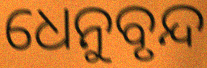
ଧେନୁବୃନ୍ଦ